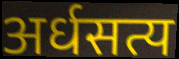
अर्धसत्य